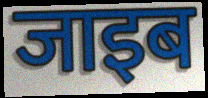
जाइब